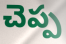
చెప్ప